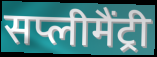
सप्लीमैंट्री